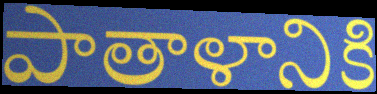
పాతాళానికి